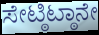
ಸೇಟ್ಠಿಟ್ಠಾನೇ